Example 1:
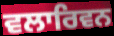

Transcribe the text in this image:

ਵਲਾਰਿਵਨ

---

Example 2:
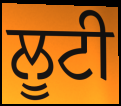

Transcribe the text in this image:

ਲੂਟੀ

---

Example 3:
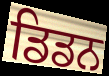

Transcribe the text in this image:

ਡਿਡਨ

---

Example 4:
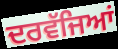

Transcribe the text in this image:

ਦਰਵੱਜਿਆਂ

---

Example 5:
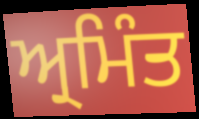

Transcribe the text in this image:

ਅ੍ਰਮਿੰਤ